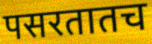
पसरतातच